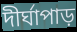
দীর্ঘাপাড়